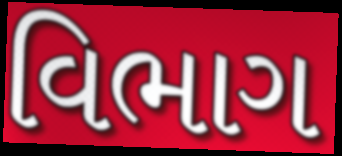
વિભાગ